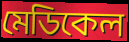
মেডিকেল